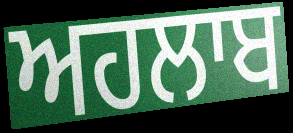
ਅਹਲਾਬ